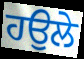
ਹਉਲੇ